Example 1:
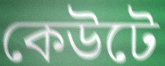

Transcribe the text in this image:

কেউটে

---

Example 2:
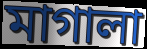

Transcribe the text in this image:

মাগালা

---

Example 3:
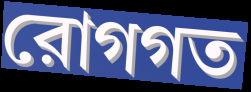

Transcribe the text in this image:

রোগগত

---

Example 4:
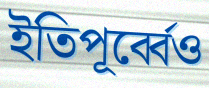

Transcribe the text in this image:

ইতিপূর্ব্বেও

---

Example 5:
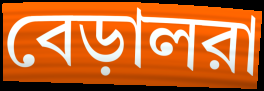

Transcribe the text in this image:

বেড়ালরা